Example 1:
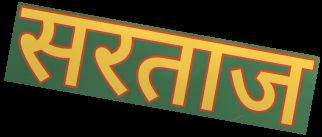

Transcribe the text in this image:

सरताज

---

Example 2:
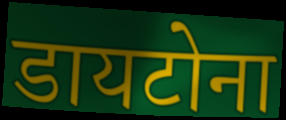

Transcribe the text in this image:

डायटोना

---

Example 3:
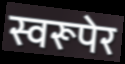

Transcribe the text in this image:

स्वरूपेर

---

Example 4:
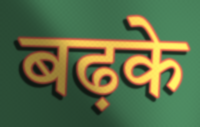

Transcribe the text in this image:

बढ़के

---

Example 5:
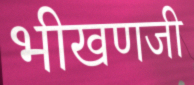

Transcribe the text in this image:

भीखणजी